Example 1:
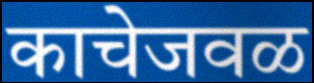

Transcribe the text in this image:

काचेजवळ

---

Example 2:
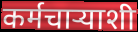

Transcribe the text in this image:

कर्मचाऱ्याशी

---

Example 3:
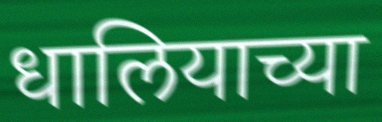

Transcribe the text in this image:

धालियाच्या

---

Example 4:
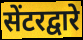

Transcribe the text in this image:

सेंटरद्वारे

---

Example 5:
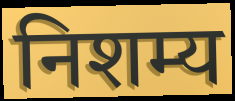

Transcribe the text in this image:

निशम्य